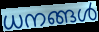
ധനങ്ങൾ